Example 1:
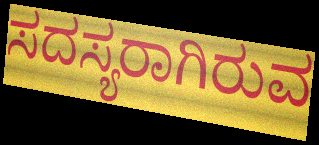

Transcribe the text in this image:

ಸದಸ್ಯರಾಗಿರುವ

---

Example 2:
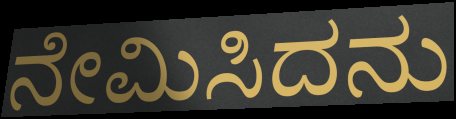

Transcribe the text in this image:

ನೇಮಿಸಿದನು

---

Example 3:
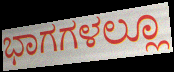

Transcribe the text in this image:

ಭಾಗಗಳಲ್ಲೂ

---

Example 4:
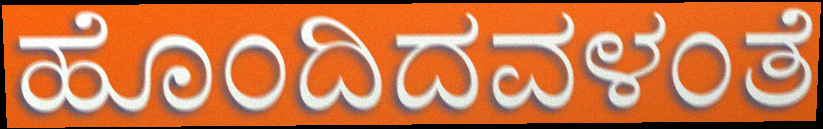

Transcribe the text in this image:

ಹೊಂದಿದವಳಂತೆ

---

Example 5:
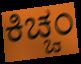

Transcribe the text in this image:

ಕಿಚ್ಚಂ